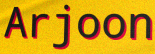
Arjoon